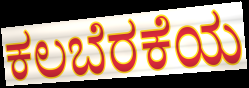
ಕಲಬೆರಕೆಯ